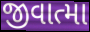
જીવાત્મા